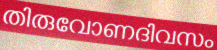
തിരുവോണദിവസം